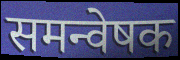
समन्वेषक